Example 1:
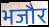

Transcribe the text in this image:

भजौर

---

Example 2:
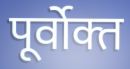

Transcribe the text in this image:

पूर्वोक्‍त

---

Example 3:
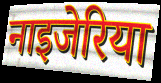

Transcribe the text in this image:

नाइजेरिया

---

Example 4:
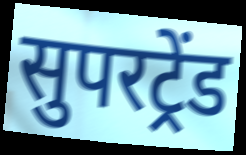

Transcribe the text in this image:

सुपरट्रेंड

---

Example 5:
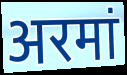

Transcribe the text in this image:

अरमां